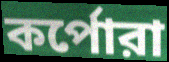
কর্পোরা